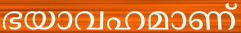
ഭയാവഹമാണ്